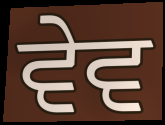
ਵੇਵ